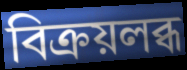
বিক্রয়লব্ধ